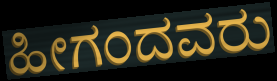
ಹೀಗಂದವರು